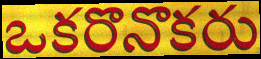
ఒకరొనొకరు